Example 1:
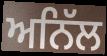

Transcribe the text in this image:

ਅਨਿੱਲ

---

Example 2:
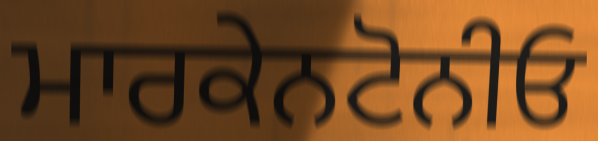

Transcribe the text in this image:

ਮਾਰਕੇਨਟੋਨੀਓ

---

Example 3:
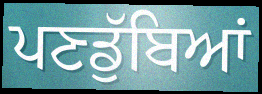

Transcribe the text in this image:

ਪਣਡੁੱਬਿਆਂ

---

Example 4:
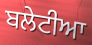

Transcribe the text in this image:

ਬਲੇਟੀਆ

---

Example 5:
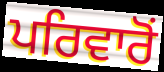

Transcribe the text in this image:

ਪਰਿਵਾਰੋਂ